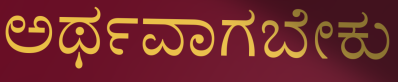
ಅರ್ಥವಾಗಬೇಕು